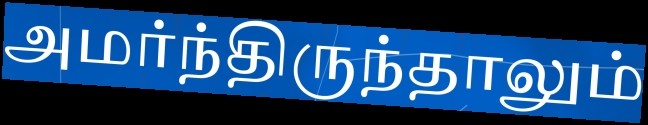
அமர்ந்திருந்தாலும்